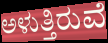
ಅಳುತ್ತಿರುವೆ